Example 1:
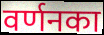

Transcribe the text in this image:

वर्णनका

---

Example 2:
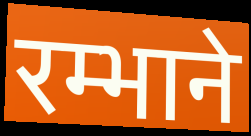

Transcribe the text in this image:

रम्भाने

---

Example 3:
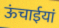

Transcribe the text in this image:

ऊंचाईयां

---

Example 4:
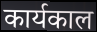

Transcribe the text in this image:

कार्यकाल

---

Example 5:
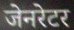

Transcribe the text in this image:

जेनरेटर